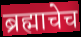
ब्रह्माचेच